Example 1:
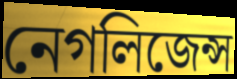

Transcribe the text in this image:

নেগলিজেন্স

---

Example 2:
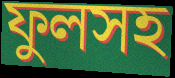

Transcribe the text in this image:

ফুলসহ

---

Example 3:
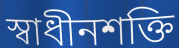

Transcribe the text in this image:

স্বাধীনশক্তি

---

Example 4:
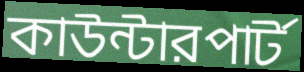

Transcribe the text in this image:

কাউন্টারপার্ট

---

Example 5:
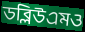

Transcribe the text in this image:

ডব্লিউএমও